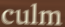
culm